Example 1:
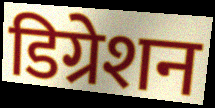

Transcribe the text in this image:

डिग्रेशन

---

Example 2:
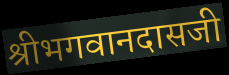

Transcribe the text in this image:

श्रीभगवानदासजी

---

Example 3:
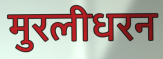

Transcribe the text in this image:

मुरलीधरन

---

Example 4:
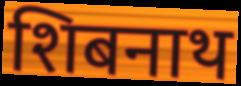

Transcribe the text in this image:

शिबनाथ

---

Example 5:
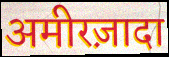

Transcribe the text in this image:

अमीरज़ादा